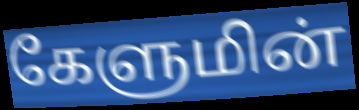
கேளுமின்